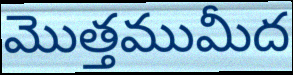
మొత్తముమీద